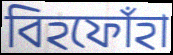
বিহফোঁহা